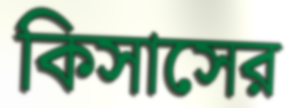
কিসাসের